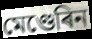
মেণ্ডেৰিন